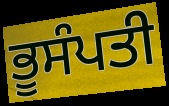
ਭੂਸੰਪਤੀ